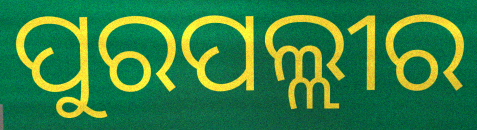
ପୁରପଲ୍ଲୀର